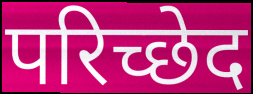
परिच्छेद